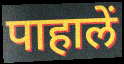
पाहालें